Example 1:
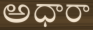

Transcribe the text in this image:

అధారా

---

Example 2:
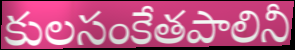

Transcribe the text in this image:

కులసంకేతపాలినీ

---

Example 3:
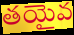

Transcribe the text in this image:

తయైవ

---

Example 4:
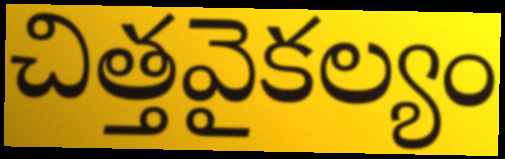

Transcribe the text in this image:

చిత్తవైకల్యం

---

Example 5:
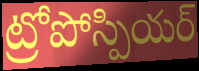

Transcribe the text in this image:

ట్రోపోస్పియర్